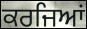
ਕਰਜਿਆਂ